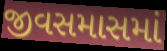
જીવસમાસમાં